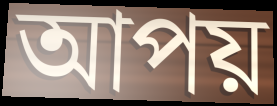
আপয়